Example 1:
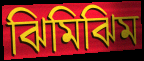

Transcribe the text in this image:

ঝিমিঝিম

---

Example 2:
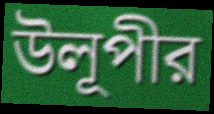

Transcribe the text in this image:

উলূপীর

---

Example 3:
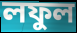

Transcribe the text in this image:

লফুল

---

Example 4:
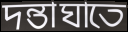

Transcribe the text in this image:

দন্তাঘাতে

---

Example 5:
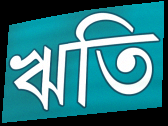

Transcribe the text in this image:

ঋতি